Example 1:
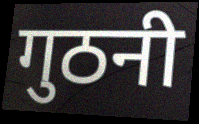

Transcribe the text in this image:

गुठनी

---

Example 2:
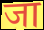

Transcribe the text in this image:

जा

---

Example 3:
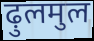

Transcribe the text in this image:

ढ़ुलमुल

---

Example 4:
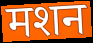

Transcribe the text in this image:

मशन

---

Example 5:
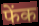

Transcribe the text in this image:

फेंक